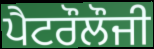
ਪੈਟਰੌਲੌਜੀ